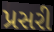
પ્રસરી